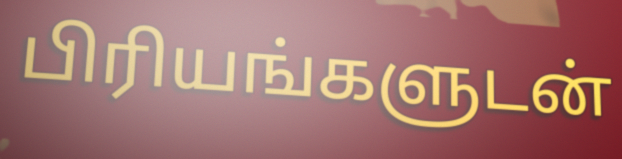
பிரியங்களுடன்